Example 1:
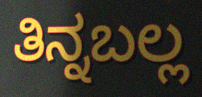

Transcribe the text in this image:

ತಿನ್ನಬಲ್ಲ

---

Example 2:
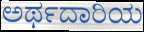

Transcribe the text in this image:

ಅರ್ಥದಾರಿಯ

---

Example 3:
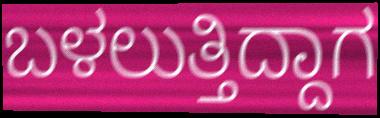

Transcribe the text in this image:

ಬಳಲುತ್ತಿದ್ದಾಗ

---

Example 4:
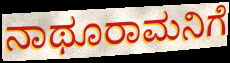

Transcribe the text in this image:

ನಾಥೂರಾಮನಿಗೆ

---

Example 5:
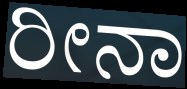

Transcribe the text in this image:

ರೀನಾ